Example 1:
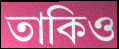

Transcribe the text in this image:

তাকিও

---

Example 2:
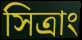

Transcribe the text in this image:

সিত্রাং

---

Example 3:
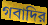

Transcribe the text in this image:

গবাদির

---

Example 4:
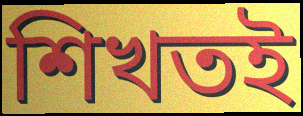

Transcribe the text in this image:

শিখতই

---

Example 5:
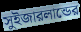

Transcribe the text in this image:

সুইজারলান্ডের